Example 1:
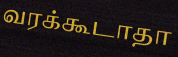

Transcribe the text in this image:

வரக்கூடாதா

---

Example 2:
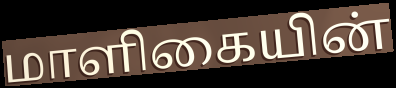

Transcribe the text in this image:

மாளிகையின்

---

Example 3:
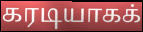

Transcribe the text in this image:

கரடியாகக்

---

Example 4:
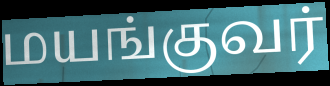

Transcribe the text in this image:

மயங்குவர்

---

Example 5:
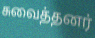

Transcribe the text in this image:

சுவைத்தனர்